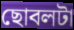
ছোবলটা